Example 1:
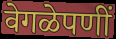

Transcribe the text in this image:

वेगळेपणीं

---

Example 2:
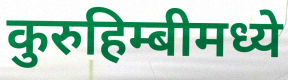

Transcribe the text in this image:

कुरुहिम्बीमध्ये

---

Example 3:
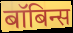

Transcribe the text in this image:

बॉबिन्स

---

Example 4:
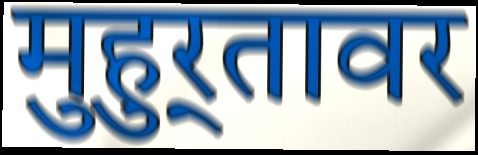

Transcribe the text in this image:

मुहुर्तावर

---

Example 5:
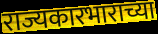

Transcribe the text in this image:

राज्यकारभाराच्या